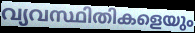
വ്യവസ്ഥിതികളെയും